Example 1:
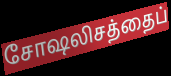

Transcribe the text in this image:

சோஷலிசத்தைப்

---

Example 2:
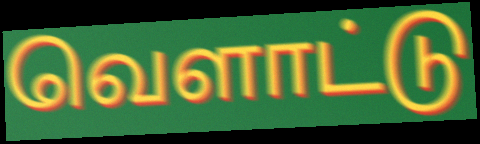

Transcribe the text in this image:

வெளாட்டு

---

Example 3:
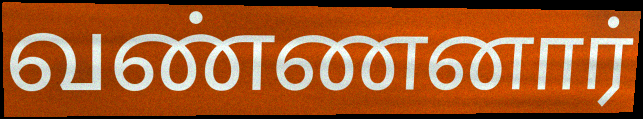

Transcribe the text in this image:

வண்ணனார்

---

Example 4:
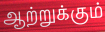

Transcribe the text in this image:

ஆற்றுக்கும்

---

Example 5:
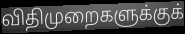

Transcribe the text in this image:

விதிமுறைகளுக்குக்